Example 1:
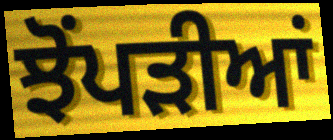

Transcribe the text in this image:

ਝੋਂਪੜੀਆਂ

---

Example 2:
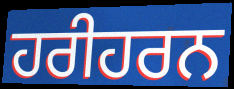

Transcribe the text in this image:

ਹਰੀਹਰਨ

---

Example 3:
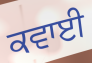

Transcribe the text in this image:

ਕਵਾਈ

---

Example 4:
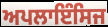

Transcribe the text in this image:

ਅਪਲਾਇੰਸਿਜ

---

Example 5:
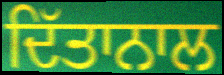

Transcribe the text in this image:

ਦਿੱਤਾਨਾਲ